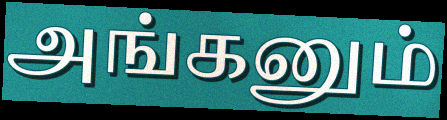
அங்கனும்